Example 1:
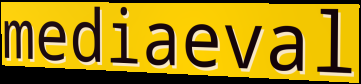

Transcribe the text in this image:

mediaeval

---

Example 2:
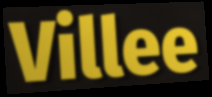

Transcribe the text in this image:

Villee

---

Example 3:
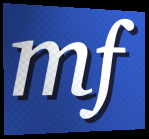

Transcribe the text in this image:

mf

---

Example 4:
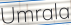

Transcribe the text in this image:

Umrala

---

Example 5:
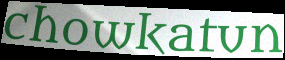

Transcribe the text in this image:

chowkatun